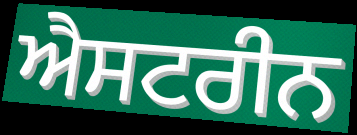
ਐਸਟਰੀਨ